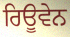
ਰਿਊਵੇਨ